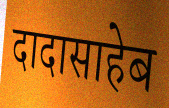
दादासाहेब